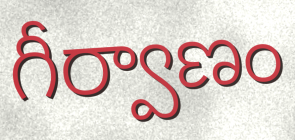
గీర్వాణం